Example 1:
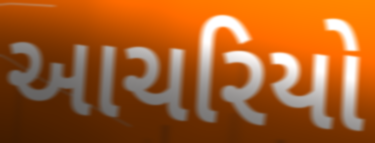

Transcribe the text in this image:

આચરિયો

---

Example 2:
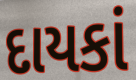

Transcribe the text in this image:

દાયકાં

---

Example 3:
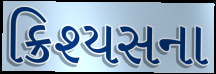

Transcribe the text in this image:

ક્રિશ્યસના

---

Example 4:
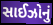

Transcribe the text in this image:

સાઈઝોનું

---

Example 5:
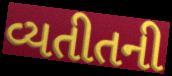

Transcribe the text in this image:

વ્યતીતની